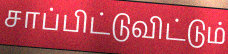
சாப்பிட்டுவிட்டும்